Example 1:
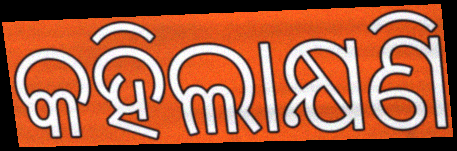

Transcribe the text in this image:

କହିଲାକ୍ଷଣି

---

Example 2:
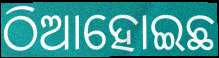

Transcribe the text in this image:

ଠିଆହୋଇଛ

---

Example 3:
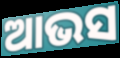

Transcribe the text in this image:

ଆଭସ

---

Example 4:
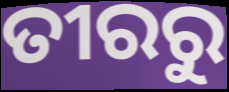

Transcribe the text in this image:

ତୀରରୁ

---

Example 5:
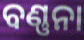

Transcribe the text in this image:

ବଣ୍ଣନା